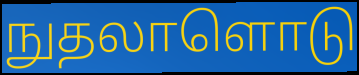
நுதலாளொடு